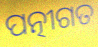
ପତ୍ନୀଗତ